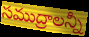
సముద్రాలన్నీ